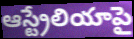
ఆస్ట్రేలియాపై